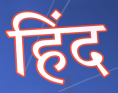
हिंद